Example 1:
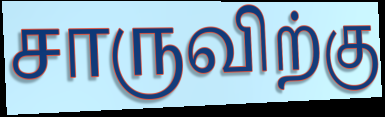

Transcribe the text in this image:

சாருவிற்கு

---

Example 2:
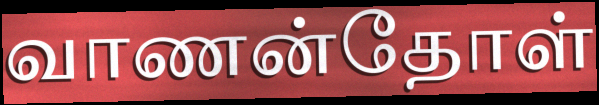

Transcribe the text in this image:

வாணன்தோள்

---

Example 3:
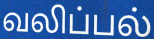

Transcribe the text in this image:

வலிப்பல்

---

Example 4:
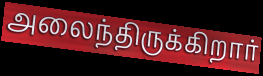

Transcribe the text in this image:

அலைந்திருக்கிறார்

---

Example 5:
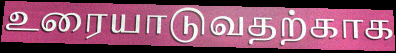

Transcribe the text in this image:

உரையாடுவதற்காக